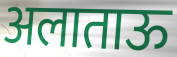
अलाताऊ